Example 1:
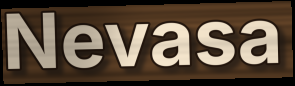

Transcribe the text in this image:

Nevasa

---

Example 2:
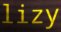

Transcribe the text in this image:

lizy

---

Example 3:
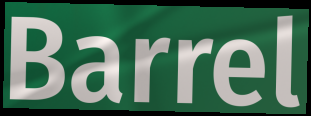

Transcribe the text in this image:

Barrel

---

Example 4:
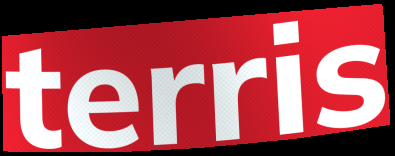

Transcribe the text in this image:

terris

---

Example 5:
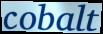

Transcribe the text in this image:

cobalt